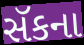
સૅકના